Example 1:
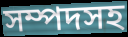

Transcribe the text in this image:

সম্পদসহ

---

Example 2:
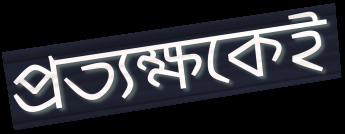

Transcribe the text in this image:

প্রত্যক্ষকেই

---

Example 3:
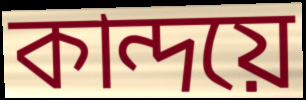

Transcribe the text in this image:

কান্দয়ে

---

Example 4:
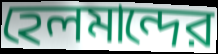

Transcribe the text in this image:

হেলমান্দের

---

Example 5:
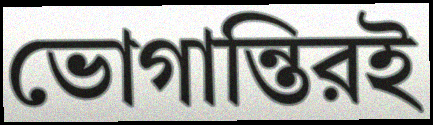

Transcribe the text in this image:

ভোগান্তিরই